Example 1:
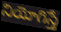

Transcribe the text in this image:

నియోగిస్తే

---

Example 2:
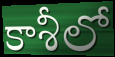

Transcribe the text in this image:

కాశీలో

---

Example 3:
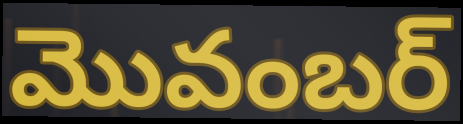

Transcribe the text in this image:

మొవంబర్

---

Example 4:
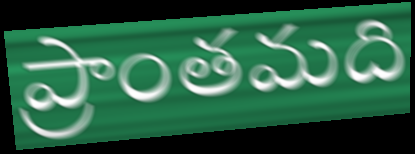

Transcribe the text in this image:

ప్రాంతమది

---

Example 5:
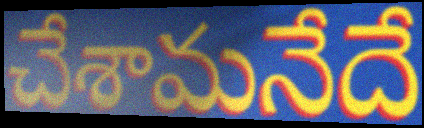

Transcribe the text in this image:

చేశామనేదే